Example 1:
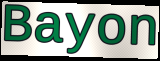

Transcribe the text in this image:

Bayon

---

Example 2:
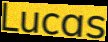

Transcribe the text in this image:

Lucas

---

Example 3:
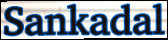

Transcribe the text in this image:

Sankadal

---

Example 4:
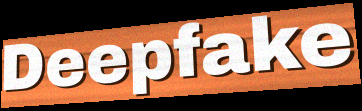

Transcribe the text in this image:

Deepfake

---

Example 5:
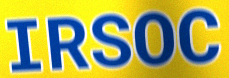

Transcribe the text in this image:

IRSOC